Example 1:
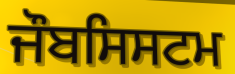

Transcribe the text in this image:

ਜੌਬਸਿਸਟਮ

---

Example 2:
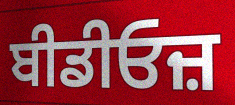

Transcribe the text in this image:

ਬੀਡੀਓਜ਼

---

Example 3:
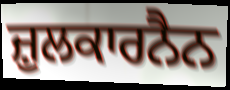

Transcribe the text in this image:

ਜ਼ੁਲਕਾਰਨੈਨ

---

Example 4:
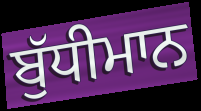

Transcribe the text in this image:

ਬੁੱਧੀਮਾਨ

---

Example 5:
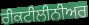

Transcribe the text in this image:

ਰੀਕਟੀਲੀਨੀਅਰ